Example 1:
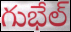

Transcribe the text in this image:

గుభేల్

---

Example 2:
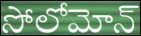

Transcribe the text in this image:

సోలోమోన్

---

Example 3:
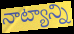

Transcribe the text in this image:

నాట్యాన్ని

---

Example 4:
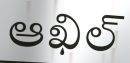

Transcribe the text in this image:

ఆఖిల్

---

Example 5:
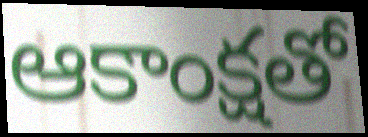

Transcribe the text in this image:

ఆకాంక్షతో